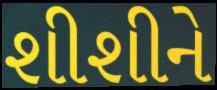
શીશીને